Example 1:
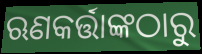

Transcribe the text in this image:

ଋଣକର୍ତ୍ତାଙ୍କଠାରୁ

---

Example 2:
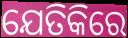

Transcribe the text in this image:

ଯେତିକିରେ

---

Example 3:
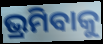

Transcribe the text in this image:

ଭ୍ରମିବାକୁ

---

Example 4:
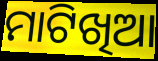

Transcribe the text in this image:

ମାଟିଖିଆ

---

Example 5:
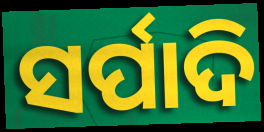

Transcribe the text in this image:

ସର୍ପାଦି